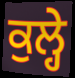
ਕੁਲ੍ਹੇ